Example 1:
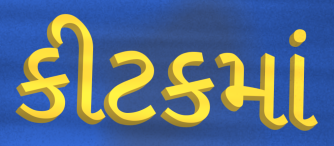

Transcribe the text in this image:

કીટકમાં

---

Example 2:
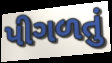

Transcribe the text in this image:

પીગળતું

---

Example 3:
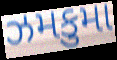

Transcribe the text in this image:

ઝમકુમા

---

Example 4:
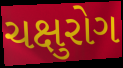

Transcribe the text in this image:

ચક્ષુરોગ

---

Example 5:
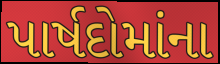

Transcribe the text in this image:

પાર્ષદોમાંના